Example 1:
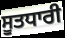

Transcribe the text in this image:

ਸੂਤਧਾਰੀ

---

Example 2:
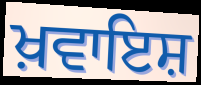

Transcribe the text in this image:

ਖ਼ਵਾਇਸ਼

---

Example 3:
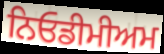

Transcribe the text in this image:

ਨਿਓਡੀਮੀਅਮ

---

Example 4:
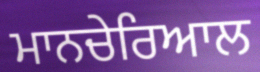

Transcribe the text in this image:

ਮਾਨਚੇਰਿਆਲ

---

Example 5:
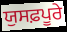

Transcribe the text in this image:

ਯੁਸਫ਼ਪੂਰੇ